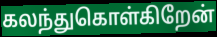
கலந்துகொள்கிறேன்